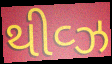
થીવ્ઝ